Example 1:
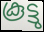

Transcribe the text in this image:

കൂട്ടു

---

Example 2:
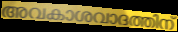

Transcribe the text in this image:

അവകാശവാദത്തിന്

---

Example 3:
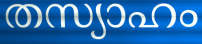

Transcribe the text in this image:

തസ്യാഹം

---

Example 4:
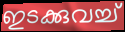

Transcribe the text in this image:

ഇടക്കുവച്ച്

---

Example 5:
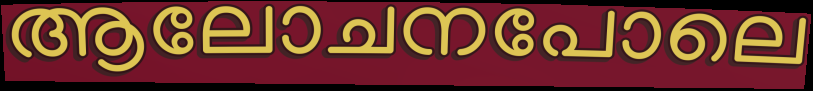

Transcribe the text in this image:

ആലോചനപോലെ